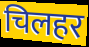
चिलहर